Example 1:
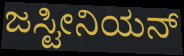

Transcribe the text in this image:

ಜಸ್ಟೀನಿಯನ್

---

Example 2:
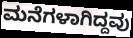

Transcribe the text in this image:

ಮನೆಗಳಾಗಿದ್ದವು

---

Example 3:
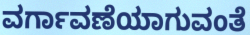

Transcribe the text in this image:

ವರ್ಗಾವಣೆಯಾಗುವಂತೆ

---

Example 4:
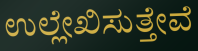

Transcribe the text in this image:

ಉಲ್ಲೇಖಿಸುತ್ತೇವೆ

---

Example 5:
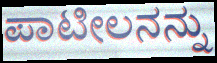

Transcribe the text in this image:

ಪಾಟೀಲನನ್ನು